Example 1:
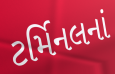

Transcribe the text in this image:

ટર્મિનલનાં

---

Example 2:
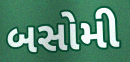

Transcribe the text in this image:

બસોમી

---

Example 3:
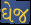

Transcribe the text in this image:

ઘેજ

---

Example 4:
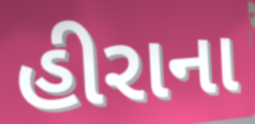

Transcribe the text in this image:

હીરાના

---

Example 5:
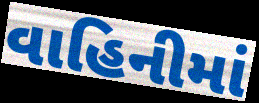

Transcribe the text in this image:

વાહિનીમાં